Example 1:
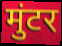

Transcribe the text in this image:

मुंटर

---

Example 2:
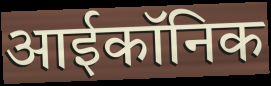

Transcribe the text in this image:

आईकॉनिक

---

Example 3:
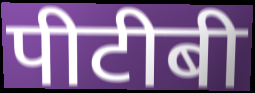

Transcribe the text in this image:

पीटीबी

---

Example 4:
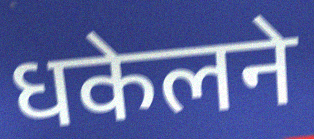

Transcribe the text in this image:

धकेलने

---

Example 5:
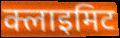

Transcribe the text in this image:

क्लाइमिट